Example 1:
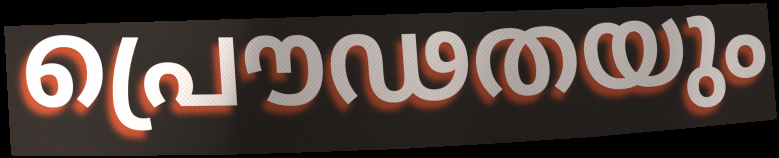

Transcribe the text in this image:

പ്രൌഢതയും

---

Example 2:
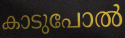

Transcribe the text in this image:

കാടുപോൽ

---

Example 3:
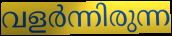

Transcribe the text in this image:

വളർന്നിരുന്ന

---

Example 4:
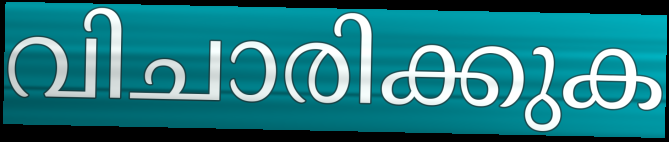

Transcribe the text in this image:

വിചാരിക്കുക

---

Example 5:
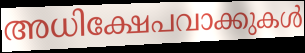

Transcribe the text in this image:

അധിക്ഷേപവാക്കുകൾ